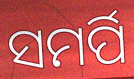
ସମର୍ପି